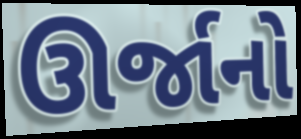
ઊર્જાનો